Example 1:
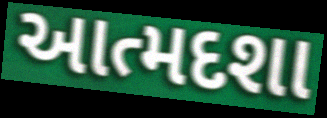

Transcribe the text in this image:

આત્મદશા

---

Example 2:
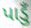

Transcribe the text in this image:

પાડુઁ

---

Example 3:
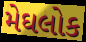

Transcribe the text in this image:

મેઘલોક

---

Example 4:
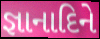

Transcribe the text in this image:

જ્ઞાનાદિને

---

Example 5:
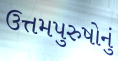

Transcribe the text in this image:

ઉત્તમપુરુષોનું